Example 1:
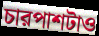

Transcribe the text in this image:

চারপাশটাও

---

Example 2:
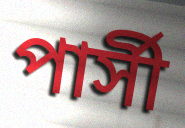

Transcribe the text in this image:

পার্সী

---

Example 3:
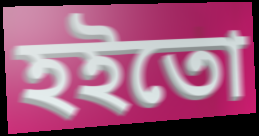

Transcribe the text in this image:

হইতো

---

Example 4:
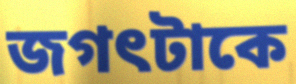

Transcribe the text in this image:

জগৎটাকে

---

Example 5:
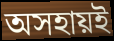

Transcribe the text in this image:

অসহায়ই